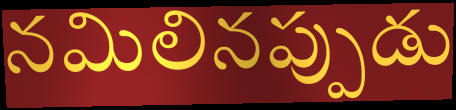
నమిలినప్పుడు